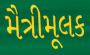
મૈત્રીમૂલક